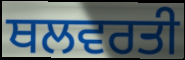
ਥਲਵਰਤੀ